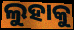
ଲୁହାକୁ